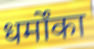
धर्मोंका